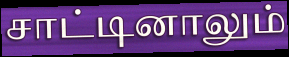
சாட்டினாலும்